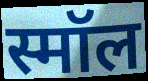
स्मॉल